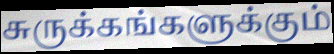
சுருக்கங்களுக்கும்